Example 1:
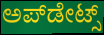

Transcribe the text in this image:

ಅಪ್‌ಡೇಟ್ಸ್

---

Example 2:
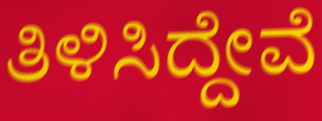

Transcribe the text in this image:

ತಿಳಿಸಿದ್ದೇವೆ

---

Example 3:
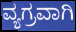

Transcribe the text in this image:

ವ್ಯಗ್ರವಾಗಿ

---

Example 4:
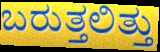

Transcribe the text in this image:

ಬರುತ್ತಲಿತ್ತು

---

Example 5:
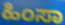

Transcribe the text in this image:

ಹಿಂಸಾ